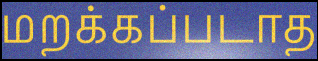
மறக்கப்படாத